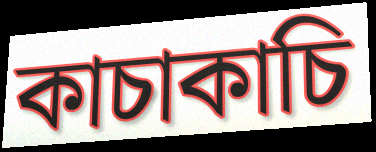
কাচাকাচি